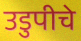
उडुपीचे